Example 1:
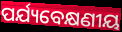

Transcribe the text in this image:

ପର୍ଯ୍ୟବେକ୍ଷଣୀୟ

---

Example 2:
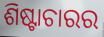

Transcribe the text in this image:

ଶିଷ୍ଟାଚାରର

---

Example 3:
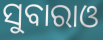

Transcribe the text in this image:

ସୁବାରାଓ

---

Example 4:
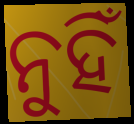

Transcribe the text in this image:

ନୁହିଁ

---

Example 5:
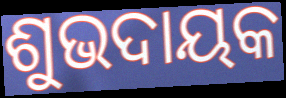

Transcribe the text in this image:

ଶୁଭଦାୟକ